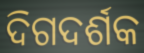
ଦିଗଦର୍ଶକ